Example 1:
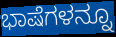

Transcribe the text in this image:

ಭಾಷೆಗಳನ್ನೂ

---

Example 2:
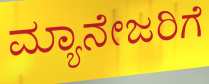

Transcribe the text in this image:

ಮ್ಯಾನೇಜರಿಗೆ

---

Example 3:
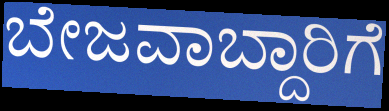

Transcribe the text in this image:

ಬೇಜವಾಬ್ದಾರಿಗೆ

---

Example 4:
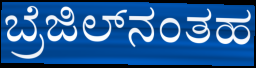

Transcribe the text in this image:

ಬ್ರೆಜಿಲ್‌ನಂತಹ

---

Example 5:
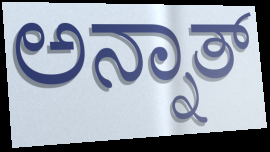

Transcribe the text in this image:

ಅನ್ನಾತ್